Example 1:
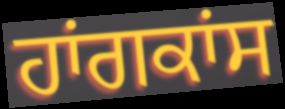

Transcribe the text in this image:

ਹਾਂਗਕਾਂਸ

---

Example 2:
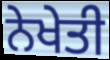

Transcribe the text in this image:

ਨੇਖੇਤੀ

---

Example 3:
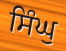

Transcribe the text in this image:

ਸਿੰਘੁ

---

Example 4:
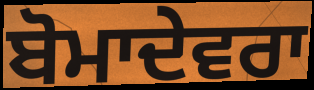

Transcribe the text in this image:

ਬੋਮਾਦੇਵਰਾ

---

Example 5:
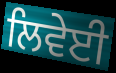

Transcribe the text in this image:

ਲਿਵੇਈ